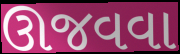
ઊજવવા